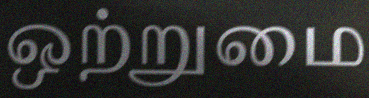
ஒற்றுமை